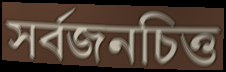
সর্বজনচিত্ত